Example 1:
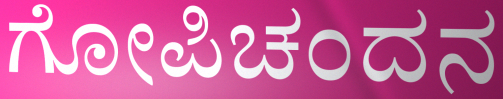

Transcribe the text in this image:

ಗೋಪಿಚಂದನ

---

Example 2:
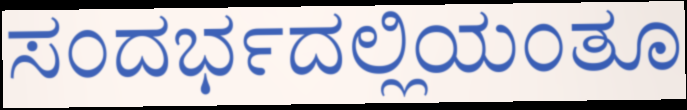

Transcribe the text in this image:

ಸಂದರ್ಭದಲ್ಲಿಯಂತೂ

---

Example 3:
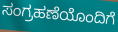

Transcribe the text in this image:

ಸಂಗ್ರಹಣೆಯೊಂದಿಗೆ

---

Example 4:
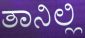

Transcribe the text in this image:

ತಾನಿಲ್ಲಿ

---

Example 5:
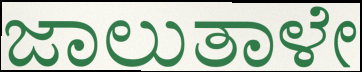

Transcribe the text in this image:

ಜಾಲುತಾಳೇ